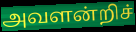
அவளன்றிச்